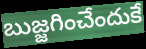
బుజ్జగించేందుకే